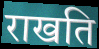
राखति